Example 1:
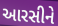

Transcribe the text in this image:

આરસીને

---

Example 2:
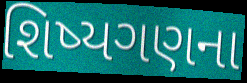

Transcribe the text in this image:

શિષ્યગણના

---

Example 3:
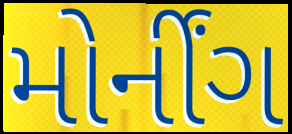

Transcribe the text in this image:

મોર્નીંગ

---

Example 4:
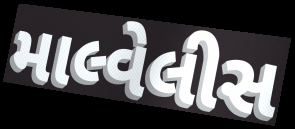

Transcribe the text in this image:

માલ્વેલીસ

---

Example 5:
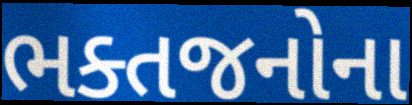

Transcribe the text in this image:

ભક્તજનોના